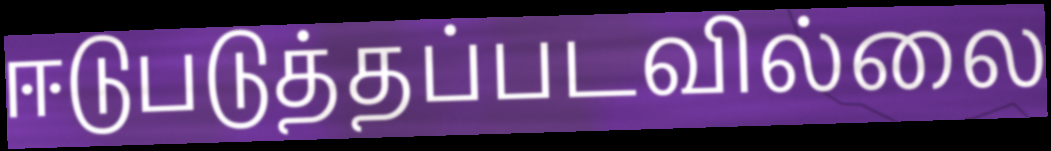
ஈடுபடுத்தப்படவில்லை